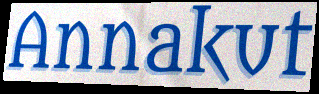
Annakut